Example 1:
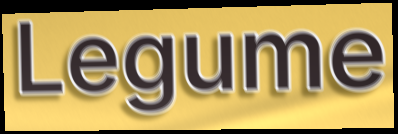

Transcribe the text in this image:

Legume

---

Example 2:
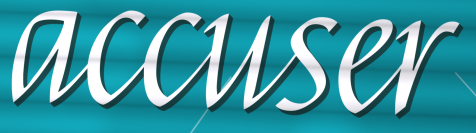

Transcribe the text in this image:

accuser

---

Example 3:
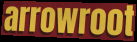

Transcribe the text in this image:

arrowroot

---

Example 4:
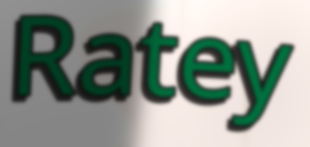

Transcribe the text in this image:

Ratey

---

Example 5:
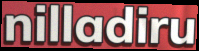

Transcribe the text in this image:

nilladiru